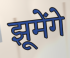
झूमेंगे